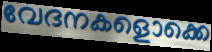
വേദനകളൊക്കെ